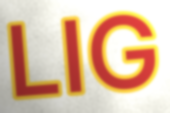
LIG